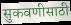
सुकवणीसाठी